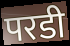
परडी